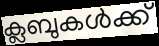
ക്ലബുകൾക്ക്